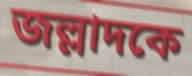
জল্লাদকে